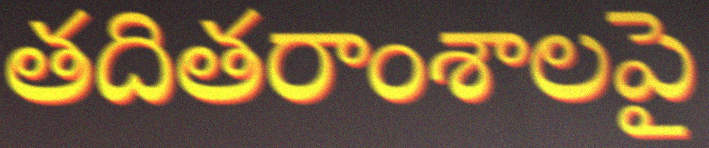
తదితరాంశాలపై